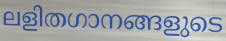
ലളിതഗാനങ്ങളുടെ